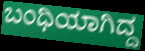
ಬಂಧಿಯಾಗಿದ್ದ